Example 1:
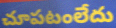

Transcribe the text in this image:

చూపటంలేదు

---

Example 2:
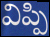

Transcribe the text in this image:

విప్పి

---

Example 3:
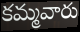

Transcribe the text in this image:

కమ్మవారు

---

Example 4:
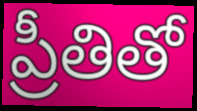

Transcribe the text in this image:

ప్రీతితో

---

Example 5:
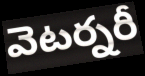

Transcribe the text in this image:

వెటర్నరీ